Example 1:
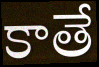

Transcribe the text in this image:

కాతే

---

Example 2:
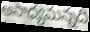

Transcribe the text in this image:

అసాధ్యమన్నది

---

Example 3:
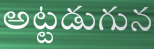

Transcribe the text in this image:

అట్టడుగున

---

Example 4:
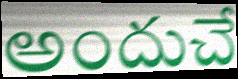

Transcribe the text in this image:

అందుచే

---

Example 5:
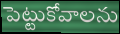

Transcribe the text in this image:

పెట్టుకోవాలను